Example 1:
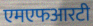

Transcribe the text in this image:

एमएफआरटी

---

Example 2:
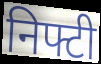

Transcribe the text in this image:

निफ्टी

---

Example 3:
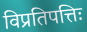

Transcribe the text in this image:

विप्रतिपत्तिः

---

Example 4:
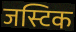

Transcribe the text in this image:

जस्टिक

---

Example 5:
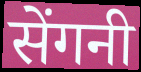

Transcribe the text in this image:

सेंगनी